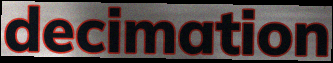
decimation